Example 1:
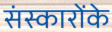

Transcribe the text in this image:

संस्कारोंके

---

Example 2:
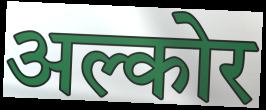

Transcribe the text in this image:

अल्कोर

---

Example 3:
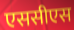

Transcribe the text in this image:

एससीएस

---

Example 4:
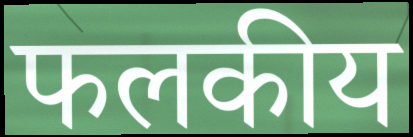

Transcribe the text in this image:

फलकीय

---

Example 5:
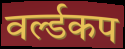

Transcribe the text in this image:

वर्ल्‍डकप